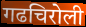
गढचिरोली